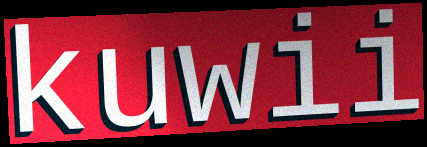
kuwii